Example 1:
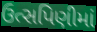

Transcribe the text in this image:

ઉત્સપિણીમાં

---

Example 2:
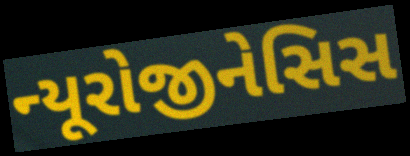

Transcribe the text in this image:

ન્યૂરોજીનેસિસ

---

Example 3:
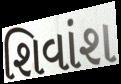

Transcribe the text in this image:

શિવાંશ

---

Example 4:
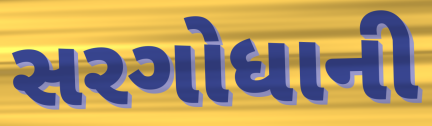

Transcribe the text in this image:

સરગોધાની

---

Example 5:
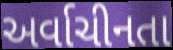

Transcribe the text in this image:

અર્વાચીનતા